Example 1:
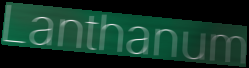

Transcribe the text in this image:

Lanthanum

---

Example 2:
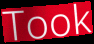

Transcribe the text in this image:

Took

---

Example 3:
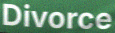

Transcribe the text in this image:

Divorce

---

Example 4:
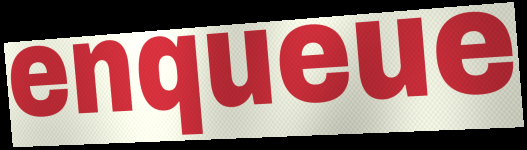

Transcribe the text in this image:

enqueue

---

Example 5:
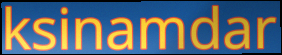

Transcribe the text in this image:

ksinamdar